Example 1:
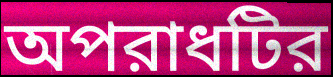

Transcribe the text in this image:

অপরাধটির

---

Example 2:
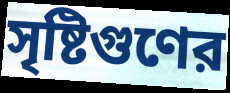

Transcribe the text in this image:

সৃষ্টিগুণের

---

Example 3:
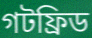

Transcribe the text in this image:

গটফ্রিড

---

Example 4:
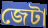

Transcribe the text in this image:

জেটা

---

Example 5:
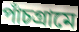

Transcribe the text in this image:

পাঁচগ্রামে